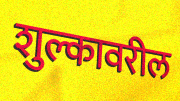
शुल्कावरील